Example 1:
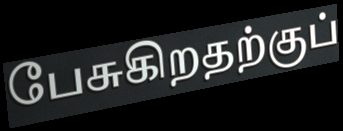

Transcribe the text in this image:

பேசுகிறதற்குப்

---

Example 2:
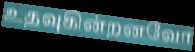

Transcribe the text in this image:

உதவுகின்றனவோ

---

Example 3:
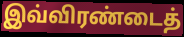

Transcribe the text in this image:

இவ்விரண்டைத்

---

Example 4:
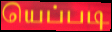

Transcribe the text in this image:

யெப்படி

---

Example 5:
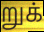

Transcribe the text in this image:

றுக்